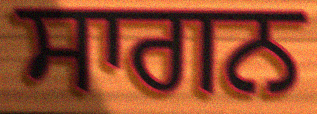
ਸਾਗਨ